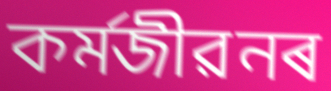
কৰ্মজীৱনৰ